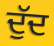
ਦੁੱਦ